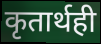
कृतार्थही